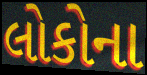
લોકોના